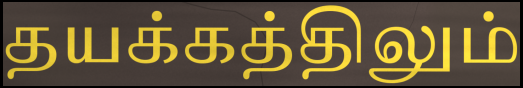
தயக்கத்திலும்